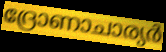
ദ്രോണാചാര്യർ